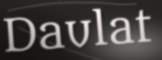
Daulat